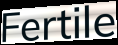
Fertile